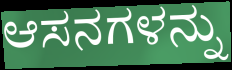
ಆಸನಗಳನ್ನು